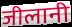
जीलानी